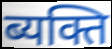
ब्यक्ति